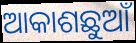
ଆକାଶଛୁଆଁ